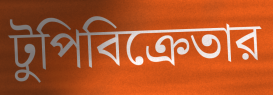
টুপিবিক্রেতার